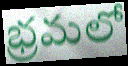
భ్రమలో